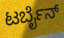
ಟರ್ಬೈನ್